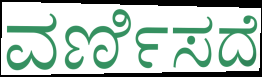
ವರ್ಣಿಸದೆ